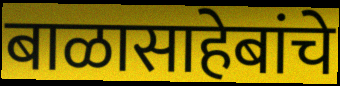
बाळासाहेबांचे